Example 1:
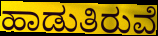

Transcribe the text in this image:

ಹಾಡುತಿರುವೆ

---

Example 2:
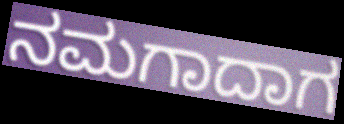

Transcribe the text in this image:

ನಮಗಾದಾಗ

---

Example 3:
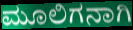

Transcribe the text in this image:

ಮೂಲಿಗನಾಗಿ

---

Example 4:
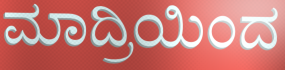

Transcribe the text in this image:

ಮಾದ್ರಿಯಿಂದ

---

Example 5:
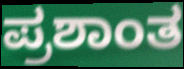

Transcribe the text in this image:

ಪ್ರಶಾಂತ